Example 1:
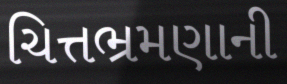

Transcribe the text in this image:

ચિત્તભ્રમણાની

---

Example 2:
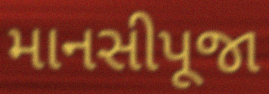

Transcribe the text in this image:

માનસીપૂજા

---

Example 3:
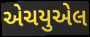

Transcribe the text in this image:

એચયુએલ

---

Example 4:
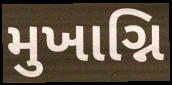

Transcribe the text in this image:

મુખાગ્નિ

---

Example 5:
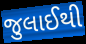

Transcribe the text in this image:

જુલાઈથી